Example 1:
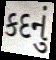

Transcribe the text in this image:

કદનું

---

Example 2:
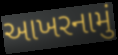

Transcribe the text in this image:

આખરનામું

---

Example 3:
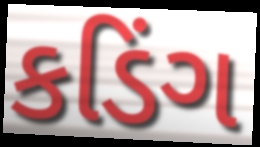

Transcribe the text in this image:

કડિંગ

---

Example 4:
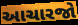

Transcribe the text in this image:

આચારજો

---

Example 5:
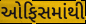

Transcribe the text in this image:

ઓફિસમાંથી